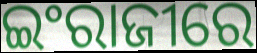
ଇଂରାଜୀରେ